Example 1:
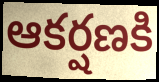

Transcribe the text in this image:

ఆకర్షణకి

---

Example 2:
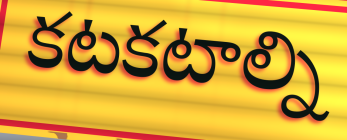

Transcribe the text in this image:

కటకటాల్ని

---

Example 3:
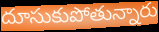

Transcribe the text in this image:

దూసుకుపోతున్నారు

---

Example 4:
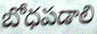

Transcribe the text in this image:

బోధపడాలి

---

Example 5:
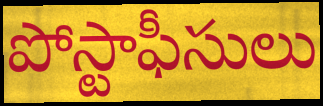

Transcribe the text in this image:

పోస్టాఫీసులు